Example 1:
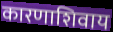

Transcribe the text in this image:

कारणाशिवाय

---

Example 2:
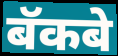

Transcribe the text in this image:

बॅकबे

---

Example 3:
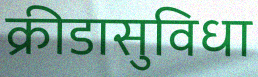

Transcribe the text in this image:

क्रीडासुविधा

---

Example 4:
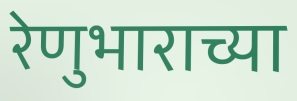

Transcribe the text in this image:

रेणुभाराच्या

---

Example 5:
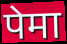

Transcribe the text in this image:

पेमा